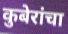
कुबेरांचा